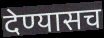
देण्यासच